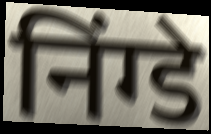
निंग्डे